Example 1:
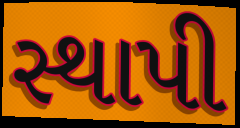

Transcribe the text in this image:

સ્થાપી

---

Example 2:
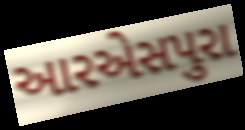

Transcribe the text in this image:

આરએસપુરા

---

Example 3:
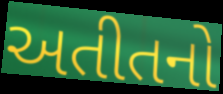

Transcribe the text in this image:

અતીતનો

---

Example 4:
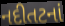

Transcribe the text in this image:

નદીતટનાં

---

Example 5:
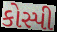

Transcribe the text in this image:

કોસ્પી